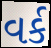
વર્ક